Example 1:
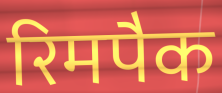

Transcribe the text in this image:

रिमपैक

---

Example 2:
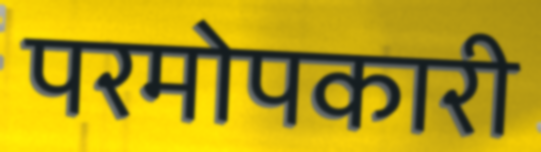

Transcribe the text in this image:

परमोपकारी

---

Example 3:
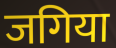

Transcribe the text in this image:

जगिया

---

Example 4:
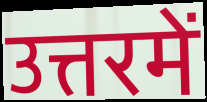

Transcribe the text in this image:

उत्तरमें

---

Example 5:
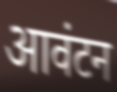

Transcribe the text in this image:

आवंटन